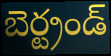
బెర్ట్రండ్